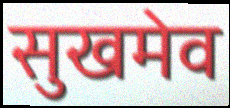
सुखमेव